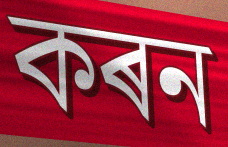
কৰন